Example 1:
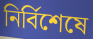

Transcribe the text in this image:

নিৰ্বিশেষে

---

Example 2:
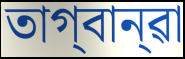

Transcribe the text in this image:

তাগ্‌বান্‌ৱা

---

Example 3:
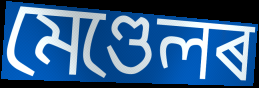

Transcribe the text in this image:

মেণ্ডেলৰ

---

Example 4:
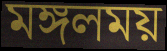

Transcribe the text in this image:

মঙ্গলময়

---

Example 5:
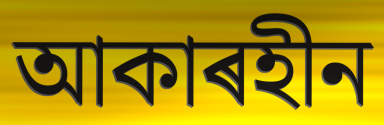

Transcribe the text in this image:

আকাৰহীন